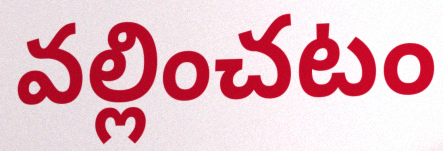
వల్లించటం